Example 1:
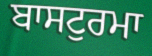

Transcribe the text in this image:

ਬਾਸਟੁਰਮਾ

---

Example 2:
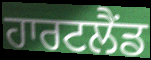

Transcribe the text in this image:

ਹਾਰਟਲੈਂਡ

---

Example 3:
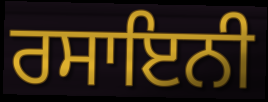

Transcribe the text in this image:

ਰਸਾਇਨੀ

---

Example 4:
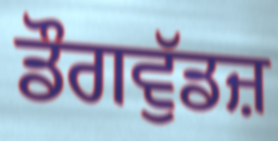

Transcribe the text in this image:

ਡੌਗਵੁੱਡਜ਼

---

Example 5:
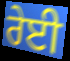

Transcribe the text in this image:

ਰੇਈ